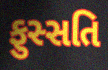
ફુસ્સતિ